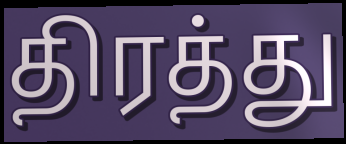
திரத்து